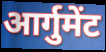
आर्गुमेंट